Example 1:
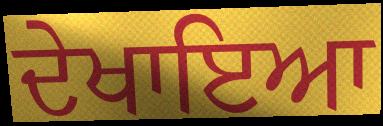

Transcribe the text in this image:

ਦੇਖਾਇਆ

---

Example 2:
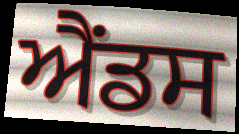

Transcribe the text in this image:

ਐਂਡਸ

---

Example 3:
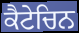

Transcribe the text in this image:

ਕੈਟੇਚਿਨ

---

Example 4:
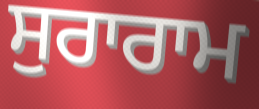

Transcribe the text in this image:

ਸੁਰਾਰਾਮ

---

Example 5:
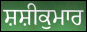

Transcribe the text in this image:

ਸ਼ਸ਼ੀਕੁਮਾਰ